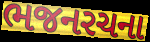
ભજનરચના